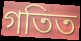
গতিত